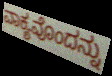
ವಾಕ್ಯವೊಂದನ್ನು